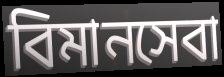
বিমানসেবা